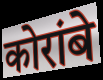
कोरांबे